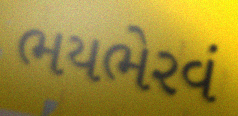
ભયભેરવં